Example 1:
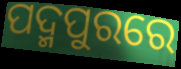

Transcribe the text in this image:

ପଦ୍ମପୁରରେ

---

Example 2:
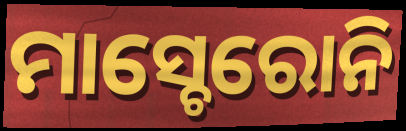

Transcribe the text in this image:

ମାସ୍ଚେରୋନି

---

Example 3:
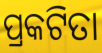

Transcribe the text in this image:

ପ୍ରକଟିତା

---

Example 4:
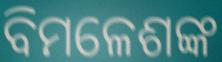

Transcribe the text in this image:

ବିମଳେଶଙ୍କ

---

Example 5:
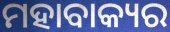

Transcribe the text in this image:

ମହାବାକ୍ୟର